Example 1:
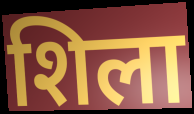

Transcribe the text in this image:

शिला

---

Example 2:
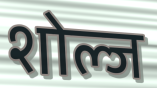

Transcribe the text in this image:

शोल्ज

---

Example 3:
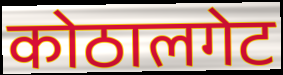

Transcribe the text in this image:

कोठालगेट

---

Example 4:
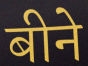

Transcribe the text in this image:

बीने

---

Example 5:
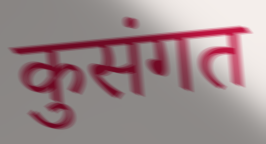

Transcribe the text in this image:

कुसंगत